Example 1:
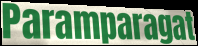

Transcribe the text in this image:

Paramparagat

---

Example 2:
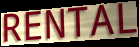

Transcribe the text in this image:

RENTAL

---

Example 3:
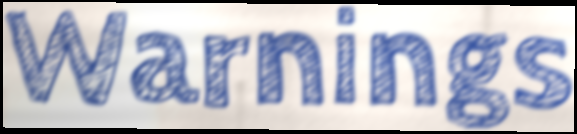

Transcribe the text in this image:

Warnings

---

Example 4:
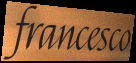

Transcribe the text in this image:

francesco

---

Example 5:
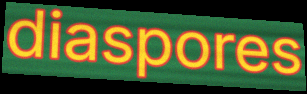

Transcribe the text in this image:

diaspores